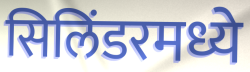
सिलिंडरमध्ये